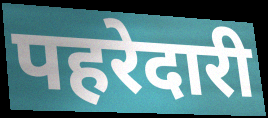
पहरेदारी